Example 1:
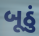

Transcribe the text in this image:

બૂઠું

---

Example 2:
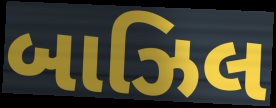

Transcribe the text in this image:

બાઝિલ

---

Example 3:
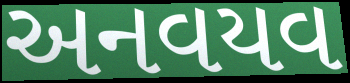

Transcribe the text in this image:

અનવયવ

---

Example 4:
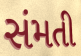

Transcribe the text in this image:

સંમતી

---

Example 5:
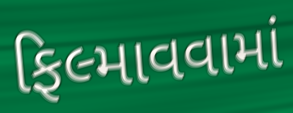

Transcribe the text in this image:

ફિલ્માવવામાં